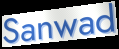
Sanwad